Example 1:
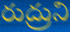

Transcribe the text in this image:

రుద్రుని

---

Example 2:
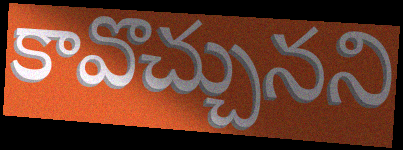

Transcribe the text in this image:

కావొచ్చునని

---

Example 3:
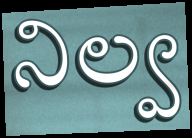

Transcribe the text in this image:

నిల్వ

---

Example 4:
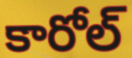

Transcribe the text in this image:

కారోల్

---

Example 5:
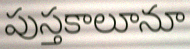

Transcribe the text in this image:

పుస్తకాలూనూ